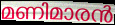
മണിമാരൻ